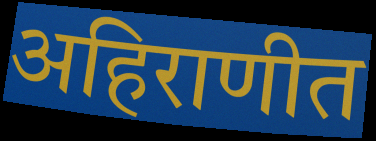
अहिराणीत